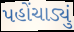
પહોંચાડ્યું